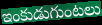
ఇంకుడుగుంటలు